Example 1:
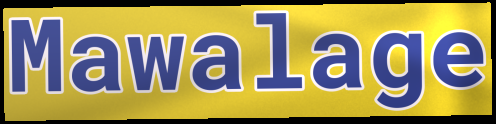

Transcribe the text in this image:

Mawalage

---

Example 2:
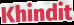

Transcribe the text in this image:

Khindit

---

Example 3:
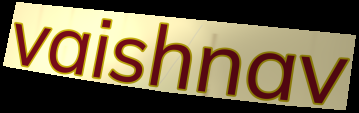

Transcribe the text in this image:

vaishnav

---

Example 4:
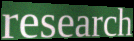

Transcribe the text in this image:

research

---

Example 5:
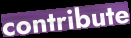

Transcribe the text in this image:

contribute